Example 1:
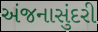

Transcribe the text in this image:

અંજનાસુંદરી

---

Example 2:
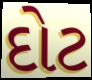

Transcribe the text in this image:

દોટ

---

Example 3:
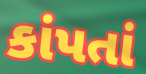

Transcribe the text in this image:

કાંપતાં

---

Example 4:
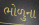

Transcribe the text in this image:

ભોળુના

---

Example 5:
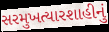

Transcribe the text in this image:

સરમુખત્યારશાહીનું